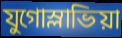
যুগোস্লাভিয়া